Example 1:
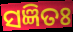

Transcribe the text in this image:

ସଜ୍ଞିତଃ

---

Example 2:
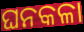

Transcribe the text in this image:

ଘନକଳା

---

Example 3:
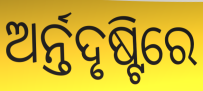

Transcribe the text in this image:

ଅର୍ନ୍ତଦୃଷ୍ଟିରେ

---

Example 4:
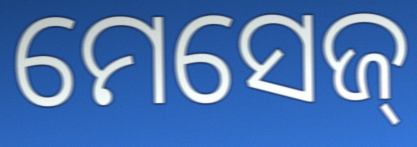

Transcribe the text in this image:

ମେସେଜ୍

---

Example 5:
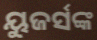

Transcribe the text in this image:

ୟୁଜର୍ସଙ୍କ